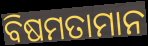
ବିଷମତାମାନ